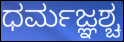
ಧರ್ಮಜ್ಞಶ್ಚ